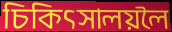
চিকিৎসালয়লৈ